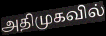
அதிமுகவில்